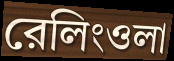
রেলিংওলা